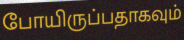
போயிருப்பதாகவும்